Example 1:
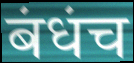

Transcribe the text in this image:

बंधंच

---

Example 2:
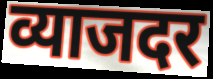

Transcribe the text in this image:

व्याजदर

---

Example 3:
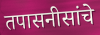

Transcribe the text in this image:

तपासनीसांचे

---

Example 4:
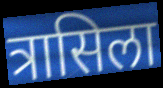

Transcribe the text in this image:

त्रासिला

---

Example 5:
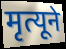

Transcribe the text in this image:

मृत्यूने